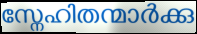
സ്നേഹിതന്മാർക്കു